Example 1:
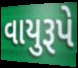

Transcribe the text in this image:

વાયુરૂપે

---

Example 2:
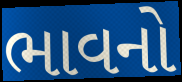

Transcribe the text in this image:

ભાવનો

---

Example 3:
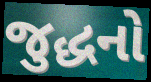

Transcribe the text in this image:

જુદ્ધનો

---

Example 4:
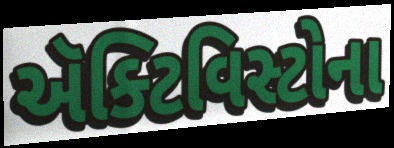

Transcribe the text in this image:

ઍક્ટિવિસ્ટોના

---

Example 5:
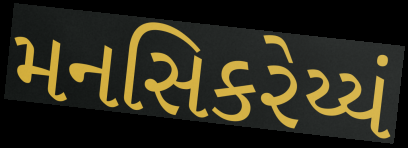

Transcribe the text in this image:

મનસિકરેય્યં